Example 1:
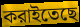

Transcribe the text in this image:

করাইতেছে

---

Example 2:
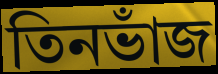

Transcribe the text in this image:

তিনভাঁজ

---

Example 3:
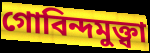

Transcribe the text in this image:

গোবিন্দমুক্ত্বা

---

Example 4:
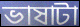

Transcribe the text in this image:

ভাষাটা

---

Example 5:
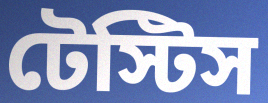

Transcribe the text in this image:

টেস্টিস